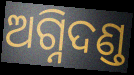
ଅଗ୍ନିଦଣ୍ଡ